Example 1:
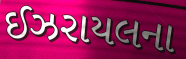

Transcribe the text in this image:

ઈઝરાયલના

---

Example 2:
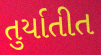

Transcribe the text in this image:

તુર્યાતીત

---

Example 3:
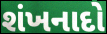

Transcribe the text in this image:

શંખનાદો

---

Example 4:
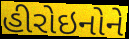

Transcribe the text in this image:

હીરોઇનોને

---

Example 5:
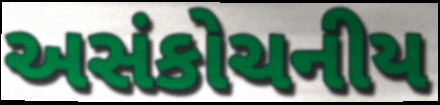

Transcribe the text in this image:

અસંકોચનીય